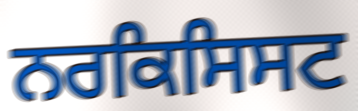
ਨਰਕਿਸਿਸਟ